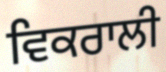
ਵਿਕਰਾਲੀ